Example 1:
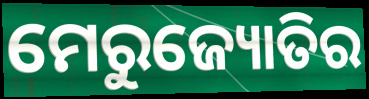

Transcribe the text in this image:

ମେରୁଜ୍ୟୋତିର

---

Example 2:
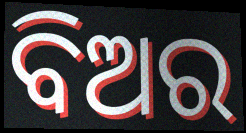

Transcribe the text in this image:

ବିଅର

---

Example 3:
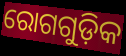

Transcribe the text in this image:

ରୋଗଗୁଡ଼ିକ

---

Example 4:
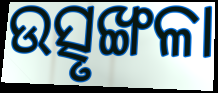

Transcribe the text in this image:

ଉତ୍ସୃଙ୍ଖଳା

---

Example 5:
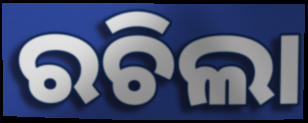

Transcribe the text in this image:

ରଚିଲା